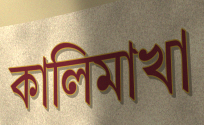
কালিমাখা